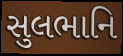
સુલભાનિ